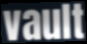
vault